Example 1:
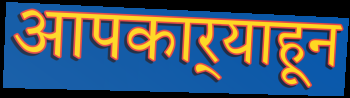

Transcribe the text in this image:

आपकार्याहून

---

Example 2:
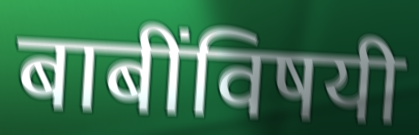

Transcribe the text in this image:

बाबींविषयी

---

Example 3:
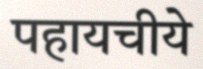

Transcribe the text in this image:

पहायचीये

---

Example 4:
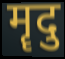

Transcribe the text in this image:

मॄदु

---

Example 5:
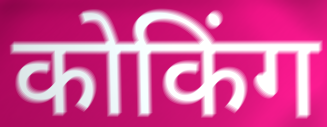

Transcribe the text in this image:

कोकिंग